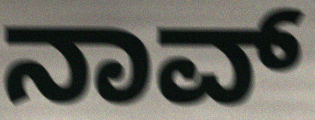
ನಾವ್